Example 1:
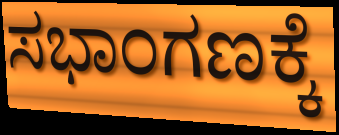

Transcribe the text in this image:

ಸಭಾಂಗಣಕ್ಕೆ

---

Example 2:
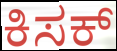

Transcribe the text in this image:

ಕಿಸಕ್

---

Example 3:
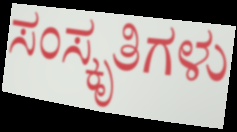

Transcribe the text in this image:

ಸಂಸ್ಕೃತಿಗಳು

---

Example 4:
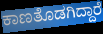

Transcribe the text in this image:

ಕಾಣತೊಡಗಿದ್ದಾರೆ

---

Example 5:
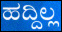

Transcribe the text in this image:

ಹದ್ದಿಲ್ಲ